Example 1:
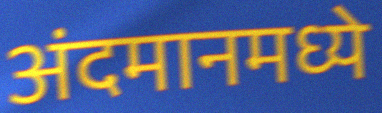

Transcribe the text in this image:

अंदमानमध्ये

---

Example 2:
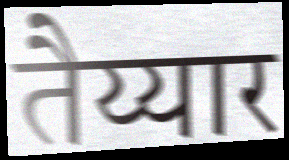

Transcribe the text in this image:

तैय्यार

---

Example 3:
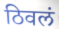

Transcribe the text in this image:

ठिवलं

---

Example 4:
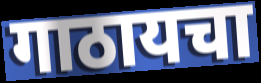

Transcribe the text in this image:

गाठायचा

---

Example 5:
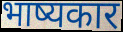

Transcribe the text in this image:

भाष्यकार